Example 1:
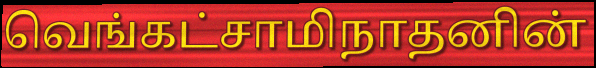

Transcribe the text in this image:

வெங்கட்சாமிநாதனின்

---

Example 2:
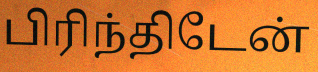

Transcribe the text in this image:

பிரிந்திடேன்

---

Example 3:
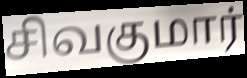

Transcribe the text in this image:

சிவகுமார்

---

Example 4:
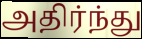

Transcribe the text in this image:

அதிர்ந்து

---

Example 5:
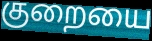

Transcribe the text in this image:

குறையை